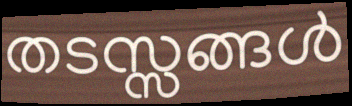
തടസ്സങ്ങൾ